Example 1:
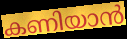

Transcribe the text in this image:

കണിയാൻ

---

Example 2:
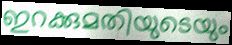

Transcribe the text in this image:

ഇറക്കുമതിയുടെയും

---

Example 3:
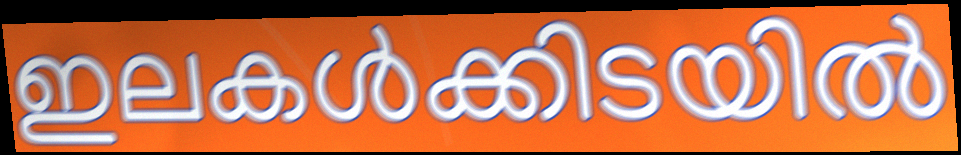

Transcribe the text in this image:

ഇലകൾക്കിടയിൽ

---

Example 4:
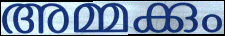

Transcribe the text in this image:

അമ്മക്കും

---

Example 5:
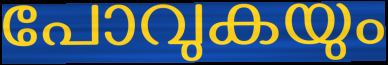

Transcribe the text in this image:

പോവുകയും